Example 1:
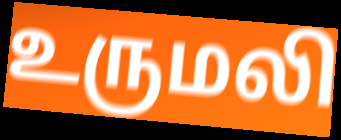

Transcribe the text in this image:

உருமலி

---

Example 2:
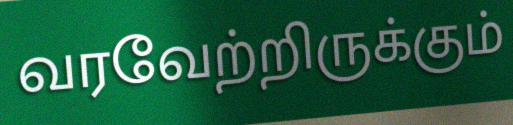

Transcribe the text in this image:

வரவேற்றிருக்கும்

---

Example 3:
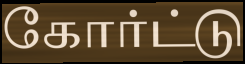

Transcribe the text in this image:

கோர்ட்டு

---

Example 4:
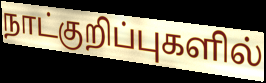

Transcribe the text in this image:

நாட்குறிப்புகளில்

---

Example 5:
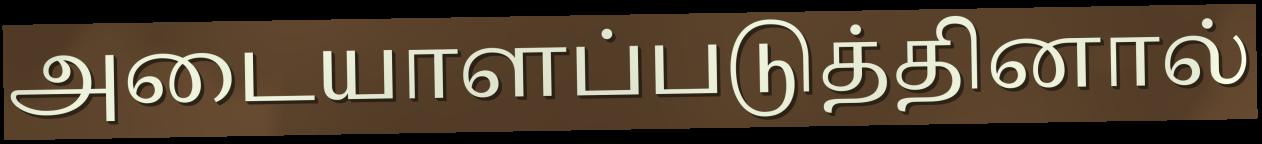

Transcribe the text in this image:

அடையாளப்படுத்தினால்